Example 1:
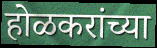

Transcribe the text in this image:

होळकरांच्या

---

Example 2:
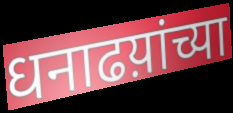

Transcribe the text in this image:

धनाढय़ांच्या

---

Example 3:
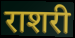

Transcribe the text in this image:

राशरी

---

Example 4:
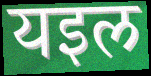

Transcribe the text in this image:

यइल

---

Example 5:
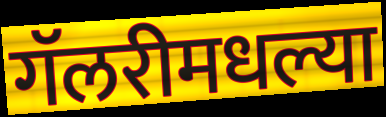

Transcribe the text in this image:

गॅलरीमधल्या